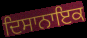
ਦਿਸਾਨਾਇਕ